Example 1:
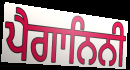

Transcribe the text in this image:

ਪੈਗਾਨਿਨੀ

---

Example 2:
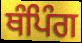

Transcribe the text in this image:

ਥੰਪਿੰਗ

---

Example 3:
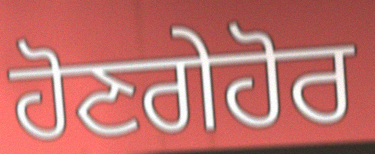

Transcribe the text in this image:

ਹੋਣਗੇਹੋਰ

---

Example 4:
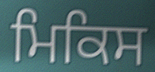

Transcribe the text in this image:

ਮਿਕਿਸ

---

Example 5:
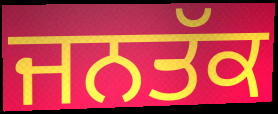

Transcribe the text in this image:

ਜਨਤੱਕ